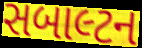
સબાલ્ટન